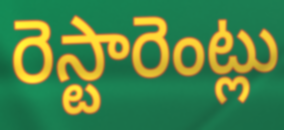
రెస్టారెంట్లు